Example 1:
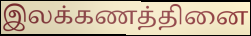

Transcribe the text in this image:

இலக்கணத்தினை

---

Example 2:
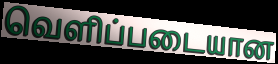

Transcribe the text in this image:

வெளிப்படையான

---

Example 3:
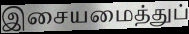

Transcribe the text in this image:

இசையமைத்துப்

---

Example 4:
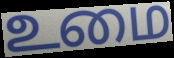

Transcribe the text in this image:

உமை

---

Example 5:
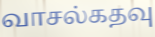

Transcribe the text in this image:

வாசல்கதவு